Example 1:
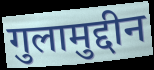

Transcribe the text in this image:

गुलामुद्दीन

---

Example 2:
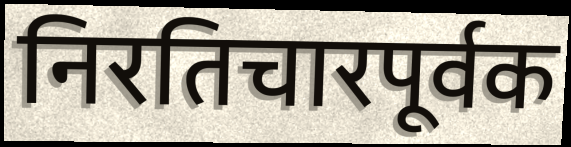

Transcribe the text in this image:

निरतिचारपूर्वक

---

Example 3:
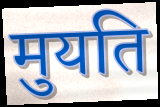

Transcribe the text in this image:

मुयति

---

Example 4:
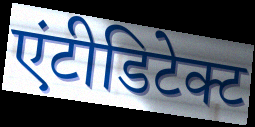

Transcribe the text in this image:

एंटीडिटेक्ट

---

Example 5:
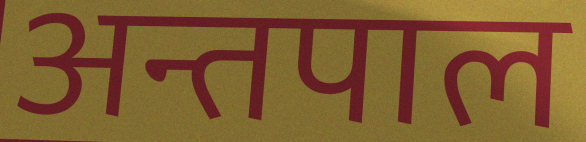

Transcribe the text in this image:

अन्तपाल